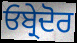
ਓਬ੍ਰੇਦੋਰ